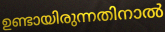
ഉണ്ടായിരുന്നതിനാൽ